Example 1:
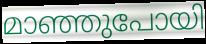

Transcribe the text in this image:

മാഞ്ഞുപോയി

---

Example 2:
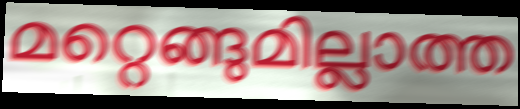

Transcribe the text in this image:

മറ്റെങ്ങുമില്ലാത്ത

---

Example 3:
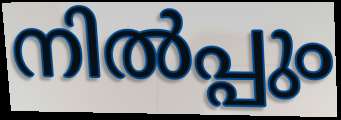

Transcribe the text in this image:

നിൽപ്പും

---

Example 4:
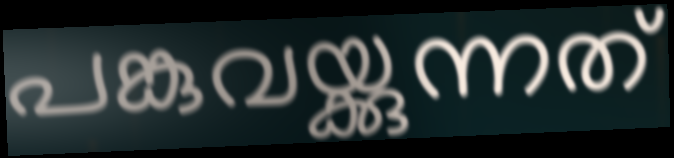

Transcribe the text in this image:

പങ്കുവയ്ക്കുന്നത്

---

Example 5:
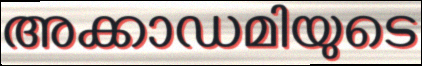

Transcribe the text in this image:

അക്കാഡമിയുടെ